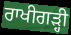
ਰਾਖੀਗੜ੍ਹੀ